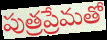
పుత్రప్రేమతో